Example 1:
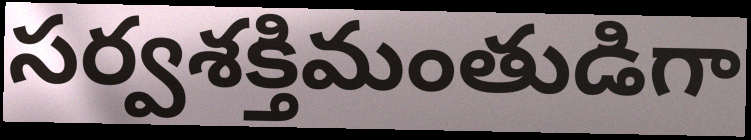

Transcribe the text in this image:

సర్వశక్తిమంతుడిగా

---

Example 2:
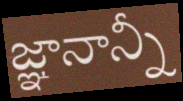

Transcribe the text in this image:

జ్ఞానాన్నీ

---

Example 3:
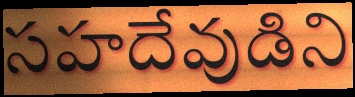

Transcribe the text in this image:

సహదేవుడిని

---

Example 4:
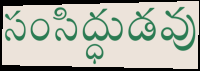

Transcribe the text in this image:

సంసిద్ధుడవు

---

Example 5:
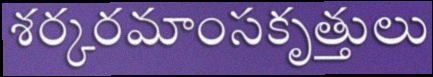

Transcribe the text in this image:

శర్కరమాంసకృత్తులు